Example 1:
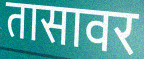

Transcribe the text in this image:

तासावर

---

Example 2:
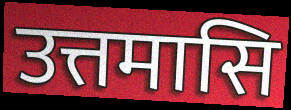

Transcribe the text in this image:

उत्तमासि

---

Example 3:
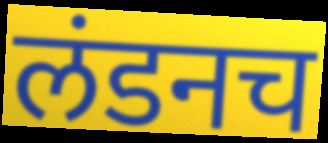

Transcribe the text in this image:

लंडनच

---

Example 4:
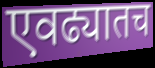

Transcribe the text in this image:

एवढ्यातच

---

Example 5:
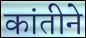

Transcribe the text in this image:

कांतीने